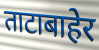
ताटाबाहेर